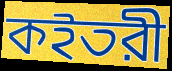
কইতরী